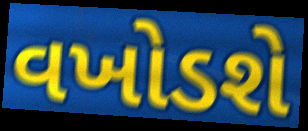
વખોડશે